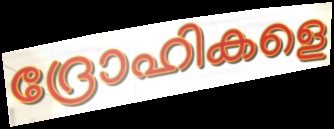
ദ്രോഹികളെ